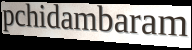
pchidambaram